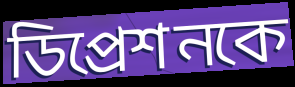
ডিপ্রেশনকে